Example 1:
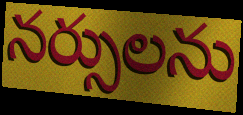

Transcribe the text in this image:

నర్సులను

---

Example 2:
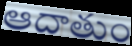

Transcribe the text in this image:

ఆదాతుం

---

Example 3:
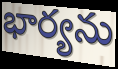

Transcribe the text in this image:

భార్యను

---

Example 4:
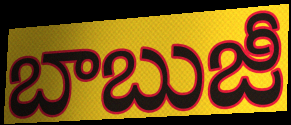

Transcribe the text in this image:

బాబుజీ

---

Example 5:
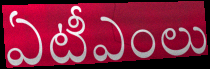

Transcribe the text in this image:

ఏటీఎంలు